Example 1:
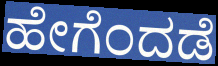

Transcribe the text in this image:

ಹೇಗೆಂದಡೆ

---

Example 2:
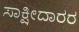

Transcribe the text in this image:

ಸಾಕ್ಷೀದಾರರ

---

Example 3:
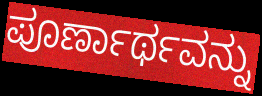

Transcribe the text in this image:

ಪೂರ್ಣಾರ್ಥವನ್ನು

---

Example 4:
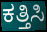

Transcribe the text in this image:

ಕತ್ತಿಸಿ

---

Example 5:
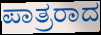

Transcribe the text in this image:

ಪಾತ್ರರಾದ